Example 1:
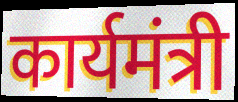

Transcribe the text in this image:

कार्यमंत्री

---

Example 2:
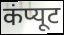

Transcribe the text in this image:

कंप्यूट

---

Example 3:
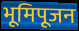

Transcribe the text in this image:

भूमिपूजन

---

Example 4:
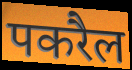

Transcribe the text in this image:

पकरैल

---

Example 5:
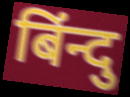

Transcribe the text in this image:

बिंन्दु